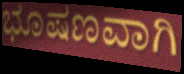
ಭೂಷಣವಾಗಿ